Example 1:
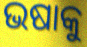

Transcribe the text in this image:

ଭଷାକୁ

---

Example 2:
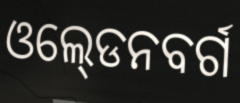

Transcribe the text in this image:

ଓଲ୍‍ଡେନବର୍ଗ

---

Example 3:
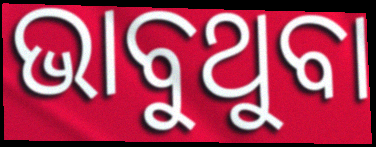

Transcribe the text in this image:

ଭାବୁଥୁବା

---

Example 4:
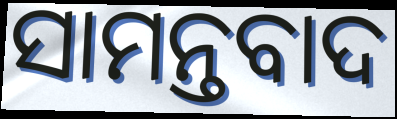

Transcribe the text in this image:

ସାମନ୍ତବାଦ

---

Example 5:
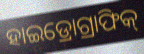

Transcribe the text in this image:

ହାଇଡ୍ରୋଗ୍ରାଫିକ୍